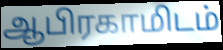
ஆபிரகாமிடம்